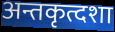
अन्तकृत्दशा